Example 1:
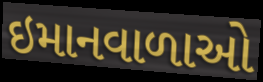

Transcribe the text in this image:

ઇમાનવાળાઓ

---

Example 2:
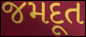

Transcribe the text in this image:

જમદૂત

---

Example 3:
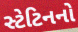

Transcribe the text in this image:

સ્ટેટિનનો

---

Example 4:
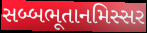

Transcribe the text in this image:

સબ્બભૂતાનમિસ્સર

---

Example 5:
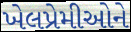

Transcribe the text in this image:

ખેલપ્રેમીઓને